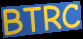
BTRC